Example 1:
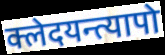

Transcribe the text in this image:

क्लेदयन्त्यापो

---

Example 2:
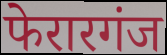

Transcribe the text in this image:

फेरारगंज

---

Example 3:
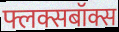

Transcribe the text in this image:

फ्लक्सबॉक्स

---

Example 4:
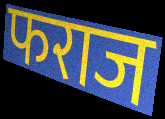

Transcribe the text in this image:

फराज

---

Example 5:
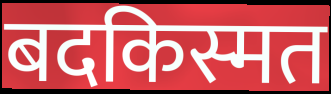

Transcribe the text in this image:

बदकिस्‍मत